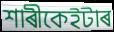
শাৰীকেইটাৰ